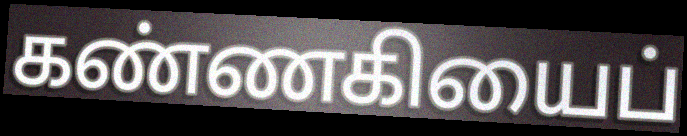
கண்ணகியைப்